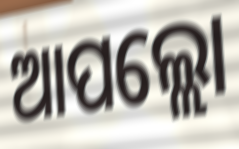
ଆପଲ୍ଲୋ